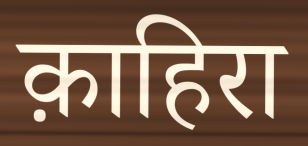
क़ाहिरा